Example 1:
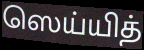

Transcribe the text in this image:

ஸெய்யித்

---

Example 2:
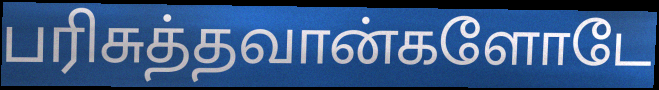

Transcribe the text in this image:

பரிசுத்தவான்களோடே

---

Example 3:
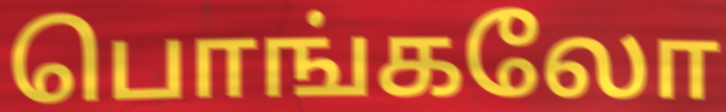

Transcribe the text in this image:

பொங்கலோ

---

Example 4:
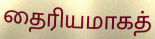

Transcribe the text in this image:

தைரியமாகத்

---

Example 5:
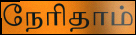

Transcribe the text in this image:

நேரிதாம்